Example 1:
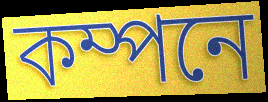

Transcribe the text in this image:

কম্পনে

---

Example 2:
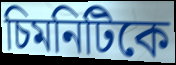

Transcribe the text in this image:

চিমনিটিকে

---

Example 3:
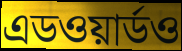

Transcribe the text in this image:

এডওয়ার্ডও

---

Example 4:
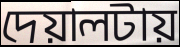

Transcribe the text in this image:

দেয়ালটায়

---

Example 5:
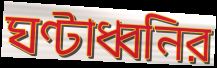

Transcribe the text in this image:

ঘণ্টাধ্বনির